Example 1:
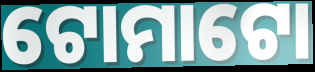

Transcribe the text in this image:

ଟୋମାଟୋ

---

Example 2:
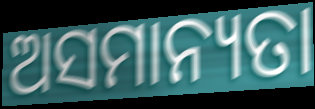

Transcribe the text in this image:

ଅସମାନ୍ୟତା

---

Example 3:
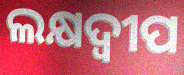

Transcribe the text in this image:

ଲକ୍ଷଦ୍ୱୀପ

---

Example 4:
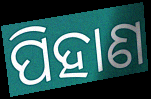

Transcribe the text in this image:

ପିହାଣ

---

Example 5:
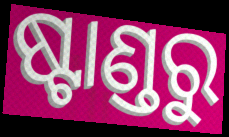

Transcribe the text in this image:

ଷ୍ଟାଣ୍ଡରୁ